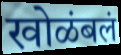
खोळंबलं